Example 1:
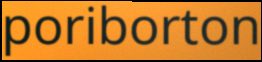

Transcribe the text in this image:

poriborton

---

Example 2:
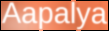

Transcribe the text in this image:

Aapalya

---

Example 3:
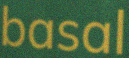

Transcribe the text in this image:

basal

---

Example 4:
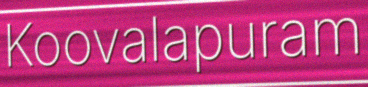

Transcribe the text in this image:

Koovalapuram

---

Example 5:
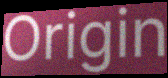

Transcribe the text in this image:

Origin